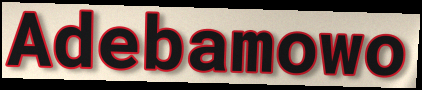
Adebamowo